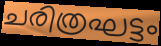
ചരിത്രഘട്ടം